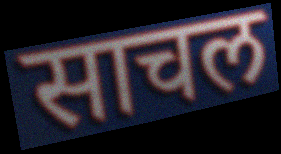
साचल